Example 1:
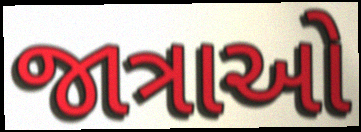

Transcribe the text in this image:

જાત્રાઓ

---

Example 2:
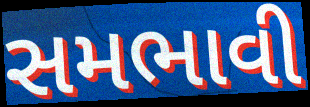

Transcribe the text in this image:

સમભાવી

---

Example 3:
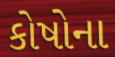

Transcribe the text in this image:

કોષોના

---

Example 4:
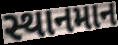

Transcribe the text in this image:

સ્થાનમાન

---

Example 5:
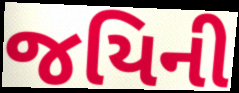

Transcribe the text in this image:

જયિની